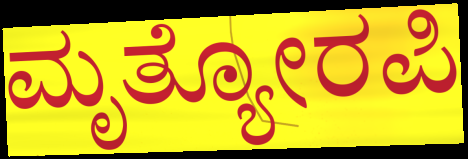
ಮೃತ್ಯೋರಪಿ